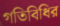
গতিবিধির